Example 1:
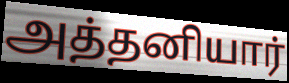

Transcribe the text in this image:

அத்தனியார்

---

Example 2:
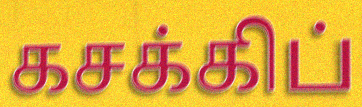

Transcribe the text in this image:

கசக்கிப்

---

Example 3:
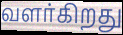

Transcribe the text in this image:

வளர்கிறது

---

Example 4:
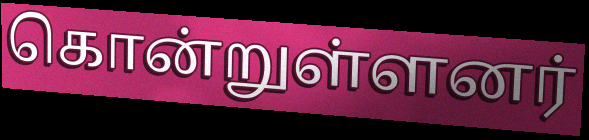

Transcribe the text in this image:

கொன்றுள்ளனர்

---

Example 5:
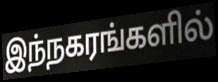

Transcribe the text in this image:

இந்நகரங்களில்